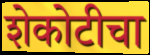
शेकोटीचा